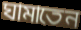
ঘামাতেন